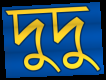
দুদু